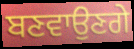
ਬਣਵਾਉਣਗੇ